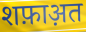
शफ़ाअ़त